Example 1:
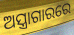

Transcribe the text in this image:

ଅସ୍ତ୍ରାଗାରରେ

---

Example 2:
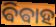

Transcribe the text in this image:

ଵିଵାହ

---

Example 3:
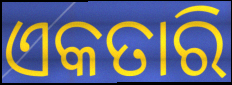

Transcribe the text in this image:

ଏକତାରି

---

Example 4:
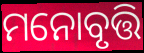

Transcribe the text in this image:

ମନୋବୃତ୍ତି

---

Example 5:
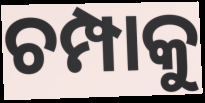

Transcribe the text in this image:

ଚମ୍ପାକୁ